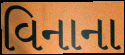
વિનાના